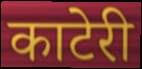
काटेरी